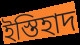
ইস্তিহাদ